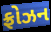
ફ્રોઝન